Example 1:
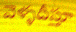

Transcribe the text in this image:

వెళ్ళదీస్తూ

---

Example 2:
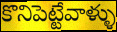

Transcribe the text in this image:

కొనిపెట్టేవాళ్ళు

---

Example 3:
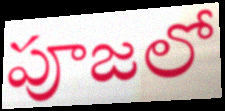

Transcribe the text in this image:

పూజలో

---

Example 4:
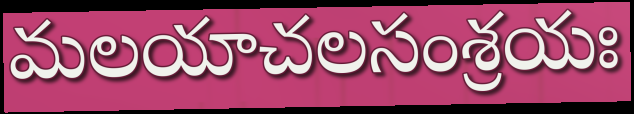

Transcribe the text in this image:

మలయాచలసంశ్రయః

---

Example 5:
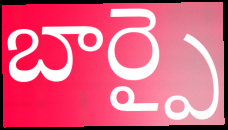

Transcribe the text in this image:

బార్పై